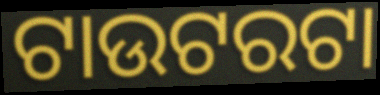
ଟାଉଟରଟା